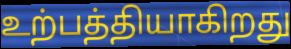
உற்பத்தியாகிறது